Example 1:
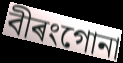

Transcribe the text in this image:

বীৰংগোনা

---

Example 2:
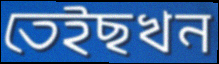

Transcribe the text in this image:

তেইছখন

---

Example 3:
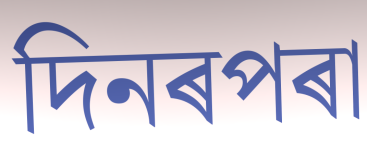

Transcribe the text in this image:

দিনৰপৰা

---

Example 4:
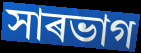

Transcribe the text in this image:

সাৰভাগ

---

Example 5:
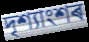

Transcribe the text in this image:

দৃশ্যাংশৰ